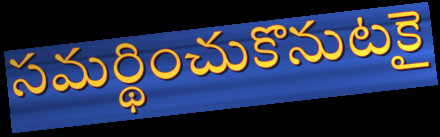
సమర్థించుకొనుటకై